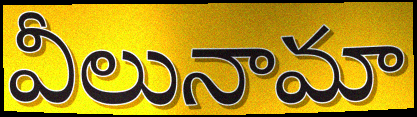
వీలునామా